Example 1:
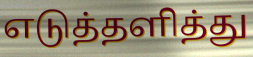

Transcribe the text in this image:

எடுத்தளித்து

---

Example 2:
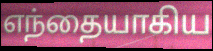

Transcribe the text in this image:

எந்தையாகிய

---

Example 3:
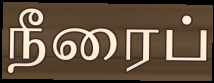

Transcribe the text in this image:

நீரைப்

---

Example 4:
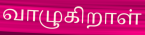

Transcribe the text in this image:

வாழுகிறாள்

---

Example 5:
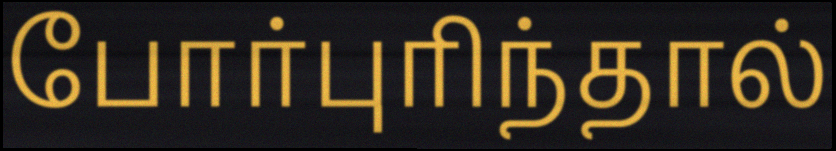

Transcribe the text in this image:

போர்புரிந்தால்